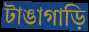
টাঙাগাড়ি